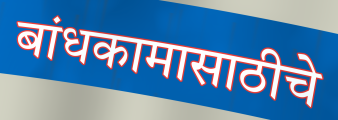
बांधकामासाठीचे